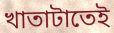
খাতাটাতেই